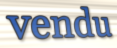
vendu